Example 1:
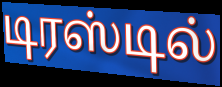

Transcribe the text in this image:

டிரஸ்டில்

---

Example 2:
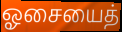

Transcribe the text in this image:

ஓசையைத்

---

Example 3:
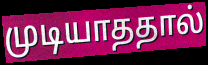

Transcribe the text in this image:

முடியாததால்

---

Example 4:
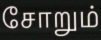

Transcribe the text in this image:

சோறும்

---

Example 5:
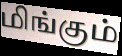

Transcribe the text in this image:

மிங்கும்